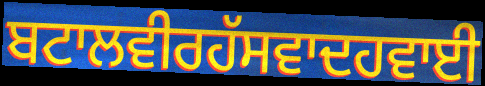
ਬਟਾਲਵੀਰਹੱਸਵਾਦਹਵਾਈ